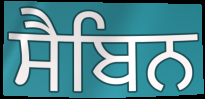
ਸੈਬਿਨ